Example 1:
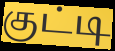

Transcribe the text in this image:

குட்டி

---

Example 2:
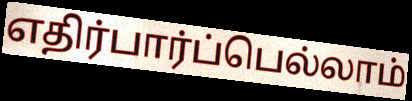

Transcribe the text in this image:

எதிர்பார்ப்பெல்லாம்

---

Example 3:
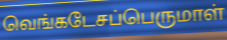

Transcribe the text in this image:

வெங்கடேசப்பெருமாள்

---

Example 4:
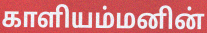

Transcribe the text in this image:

காளியம்மனின்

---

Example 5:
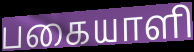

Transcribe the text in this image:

பகையாளி